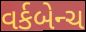
વર્કબેન્ચ